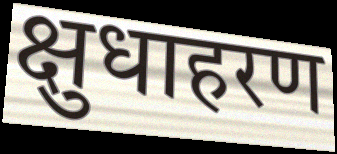
क्षुधाहरण